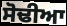
ਸੋਢੀਆ